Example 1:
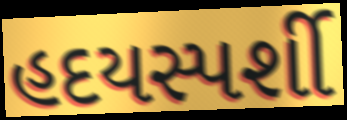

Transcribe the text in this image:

હદયસ્પર્શી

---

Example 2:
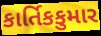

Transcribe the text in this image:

કાર્તિકકુમાર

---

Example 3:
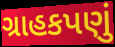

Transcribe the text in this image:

ગ્રાહકપણું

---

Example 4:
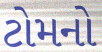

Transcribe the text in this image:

ટોમનો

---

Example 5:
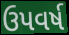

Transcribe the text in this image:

ઉપવર્ષ